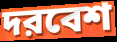
দরবেশ